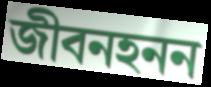
জীবনহনন